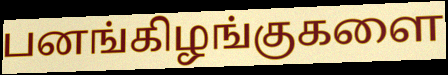
பனங்கிழங்குகளை